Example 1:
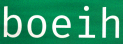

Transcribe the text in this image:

boeih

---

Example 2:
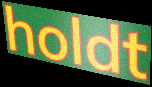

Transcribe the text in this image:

holdt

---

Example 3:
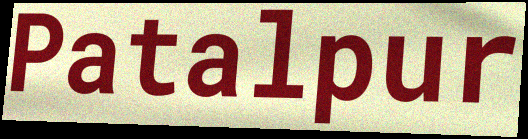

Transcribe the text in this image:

Patalpur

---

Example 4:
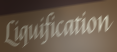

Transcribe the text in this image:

Liquification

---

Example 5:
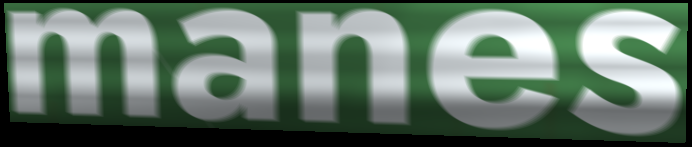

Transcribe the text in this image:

manes